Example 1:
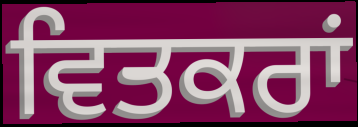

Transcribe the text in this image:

ਵਿਤਕਰਾਂ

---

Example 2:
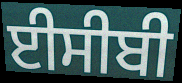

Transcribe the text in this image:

ਈਸੀਬੀ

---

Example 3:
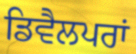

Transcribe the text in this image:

ਡਿਵੈਲਪਰਾਂ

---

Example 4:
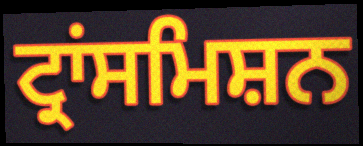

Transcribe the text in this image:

ਟ੍ਰਾਂਸਮਿਸ਼ਨ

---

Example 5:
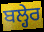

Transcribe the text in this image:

ਬਲ੍ਹੇਰ